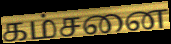
கம்சனை